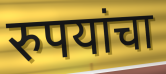
रुपयांचा